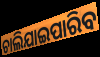
ଚାଲିଯାଇପାରିବ